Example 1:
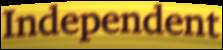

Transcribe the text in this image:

Independent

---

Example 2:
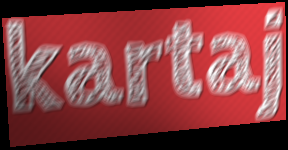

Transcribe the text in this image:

kartaj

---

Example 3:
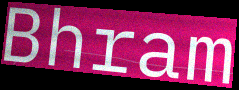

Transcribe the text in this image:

Bhram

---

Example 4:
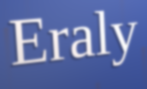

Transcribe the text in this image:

Eraly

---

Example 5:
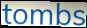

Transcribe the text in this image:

tombs